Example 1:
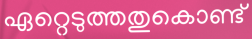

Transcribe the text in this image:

ഏറ്റെടുത്തതുകൊണ്ട്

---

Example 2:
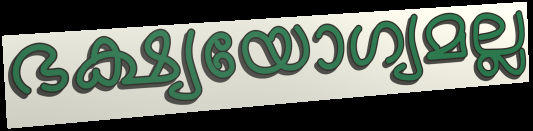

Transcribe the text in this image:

ഭക്ഷ്യയോഗ്യമല്ല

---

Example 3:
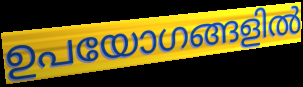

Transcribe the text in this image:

ഉപയോഗങ്ങളിൽ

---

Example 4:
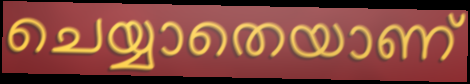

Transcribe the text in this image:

ചെയ്യാതെയാണ്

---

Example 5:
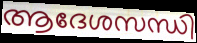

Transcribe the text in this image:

ആദേശസന്ധി